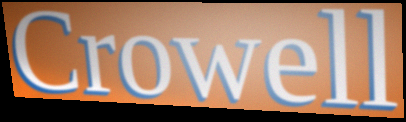
Crowell